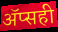
ॲप्सही